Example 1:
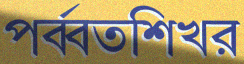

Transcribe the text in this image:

পর্ব্বতশিখর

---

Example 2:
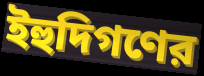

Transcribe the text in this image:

ইহুদিগণের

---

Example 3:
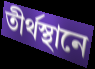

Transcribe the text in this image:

তীর্থস্থানে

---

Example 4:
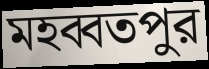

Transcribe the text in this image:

মহব্বতপুর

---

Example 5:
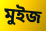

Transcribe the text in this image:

মুইজ